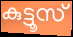
കുട്ടൂസ്